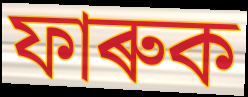
ফাৰুক